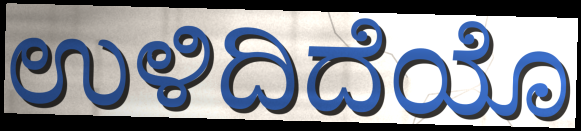
ಉಳಿದಿದೆಯೊ